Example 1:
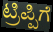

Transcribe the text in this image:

ಟ್ರಿಪ್ಪಿಗೆ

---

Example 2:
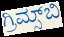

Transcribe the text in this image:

ಗ್ರಿಮ್ಸ್‌ಬಿ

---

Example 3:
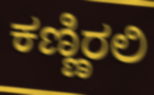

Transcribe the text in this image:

ಕಣ್ಣಿರಲಿ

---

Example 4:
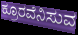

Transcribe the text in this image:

ಕ್ರೂರವೆನಿಸುವ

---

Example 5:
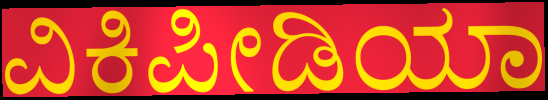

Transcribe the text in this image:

ವಿಕಿಪೀಡಿಯಾ